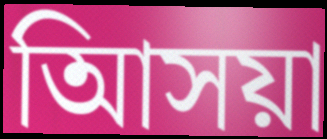
আিসয়া